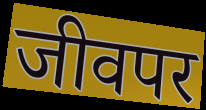
जीवपर